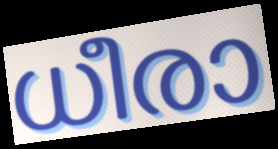
ധീരാ